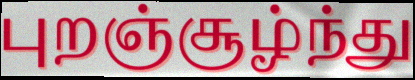
புறஞ்சூழ்ந்து